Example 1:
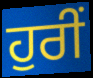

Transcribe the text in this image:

ਹੁਰੀਂ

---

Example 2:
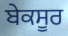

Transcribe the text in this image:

ਬੇਕਸੂਰ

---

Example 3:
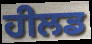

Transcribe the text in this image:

ਹੀਲਡ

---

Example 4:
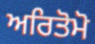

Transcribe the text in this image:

ਅਰਿਤੋਮੋ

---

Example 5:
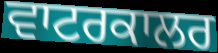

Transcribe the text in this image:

ਵਾਟਰਕਾਲਰ